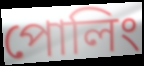
পোলিং